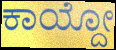
ಕಾಯ್ದೋ